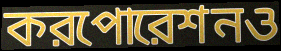
করপোরেশনও